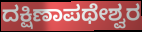
ದಕ್ಷಿಣಾಪಥೇಶ್ವರ